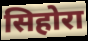
सिहोरा